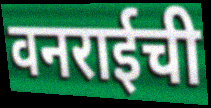
वनराईची